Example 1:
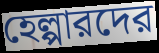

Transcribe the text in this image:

হেল্পারদের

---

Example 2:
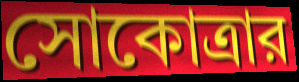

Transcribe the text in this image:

সোকোত্রার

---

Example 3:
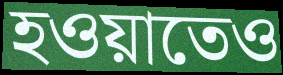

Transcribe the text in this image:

হওয়াতেও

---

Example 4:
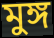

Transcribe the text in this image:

মুঙ্গ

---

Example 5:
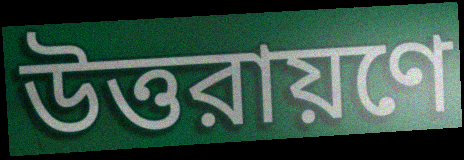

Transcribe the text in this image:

উত্তরায়ণে